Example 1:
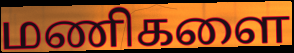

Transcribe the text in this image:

மணிகளை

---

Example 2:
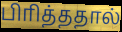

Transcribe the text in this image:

பிரித்ததால்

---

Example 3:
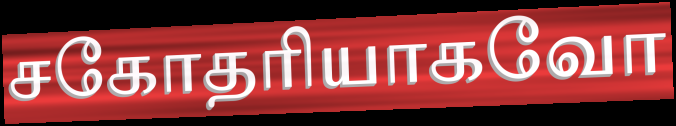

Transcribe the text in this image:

சகோதரியாகவோ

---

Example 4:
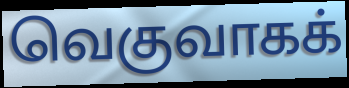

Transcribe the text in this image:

வெகுவாகக்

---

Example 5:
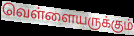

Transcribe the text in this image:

வெள்ளையருக்கும்